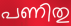
പണിതു